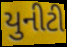
યુનીટી